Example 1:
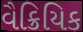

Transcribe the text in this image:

વૈક્રિયિક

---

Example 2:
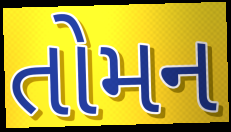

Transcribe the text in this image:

તોમન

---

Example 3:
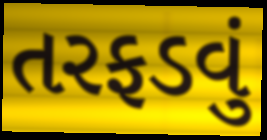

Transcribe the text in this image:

તરફડવું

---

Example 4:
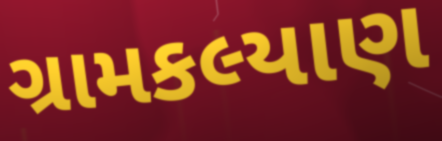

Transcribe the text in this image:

ગ્રામકલ્યાણ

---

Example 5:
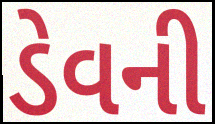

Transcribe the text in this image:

ડેવની